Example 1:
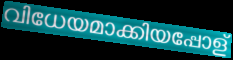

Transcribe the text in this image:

വിധേയമാക്കിയപ്പോള്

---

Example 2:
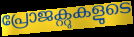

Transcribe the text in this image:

പ്രോജക്റ്റുകളുടെ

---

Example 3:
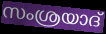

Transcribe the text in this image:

സംശ്രയാദ്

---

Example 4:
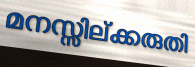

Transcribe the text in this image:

മനസ്സില്ക്കരുതി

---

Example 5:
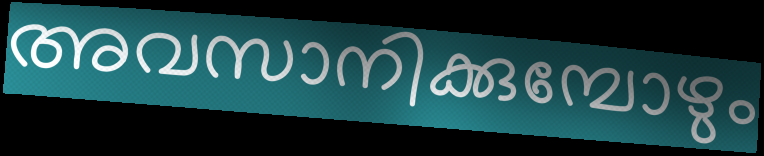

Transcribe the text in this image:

അവസാനിക്കുമ്പോഴും